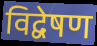
विद्वेषण